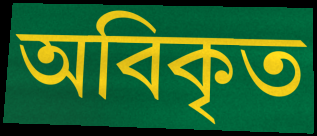
অবিকৃত